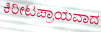
ಕಿರೀಟಪ್ರಾಯವಾದ